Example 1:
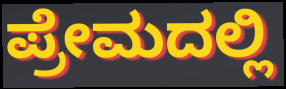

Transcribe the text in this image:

ಪ್ರೇಮದಲ್ಲಿ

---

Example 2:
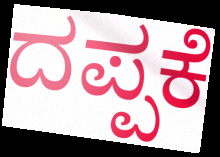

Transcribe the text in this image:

ದಪ್ಪಕೆ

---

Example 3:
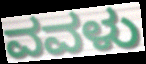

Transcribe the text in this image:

ವವಳು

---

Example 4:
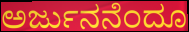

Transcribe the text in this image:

ಅರ್ಜುನನೆಂದೂ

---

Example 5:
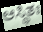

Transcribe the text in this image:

ಆಸ್ಥಿತಃ